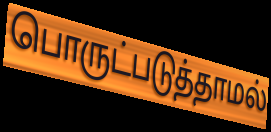
பொருட்படுத்தாமல்